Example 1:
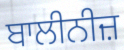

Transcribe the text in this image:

ਬਾਲੀਨੀਜ਼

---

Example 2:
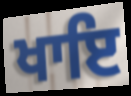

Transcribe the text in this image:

ਖਾਇ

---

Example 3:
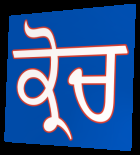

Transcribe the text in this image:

ਕ੍ਰੋਚ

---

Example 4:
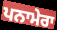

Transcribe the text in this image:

ਪਨਾਮੇਰਾ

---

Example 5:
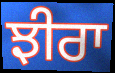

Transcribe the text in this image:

ਝੀਰਾ